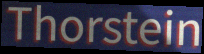
Thorstein